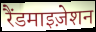
रैंडमाइज़ेशन